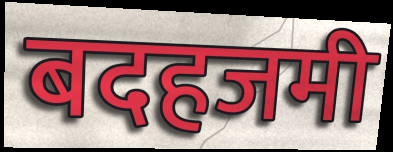
बदहजमी